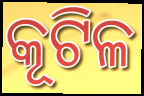
କୂଟିଳ